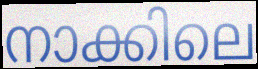
നാക്കിലെ